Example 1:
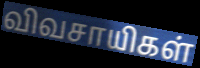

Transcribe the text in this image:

விவசாயிகள்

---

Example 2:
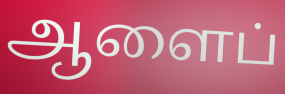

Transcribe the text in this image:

ஆளைப்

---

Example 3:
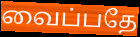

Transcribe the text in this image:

வைப்பதே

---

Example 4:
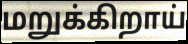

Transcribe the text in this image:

மறுக்கிறாய்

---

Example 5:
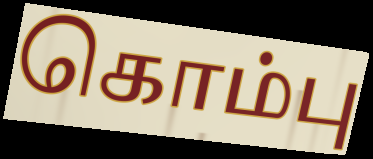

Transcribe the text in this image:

கொம்பு